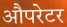
औपरेटर